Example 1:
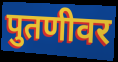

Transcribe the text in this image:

पुतणीवर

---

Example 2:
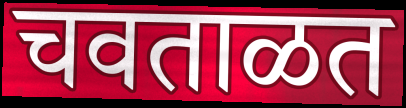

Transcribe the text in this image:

चवताळत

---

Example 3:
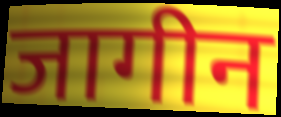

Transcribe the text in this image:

जागीन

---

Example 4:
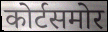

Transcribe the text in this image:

कोर्टसमोर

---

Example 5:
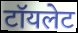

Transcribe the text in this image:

टॉयलेट